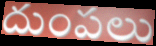
దుంపలు